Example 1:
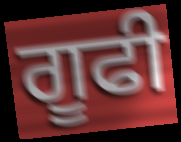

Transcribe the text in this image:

ਗੂਫੀ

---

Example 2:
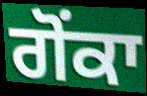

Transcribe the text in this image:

ਗੋਂਕਾ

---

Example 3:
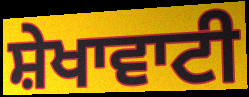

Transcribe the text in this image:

ਸ਼ੇਖਾਵਾਟੀ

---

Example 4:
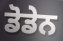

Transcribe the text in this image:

ਡੋਡੇਨ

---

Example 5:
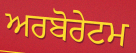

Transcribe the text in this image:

ਅਰਬੋਰੇਟਮ